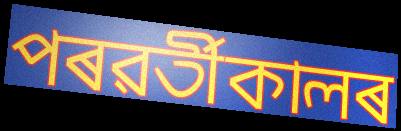
পৰৱৰ্তীকালৰ